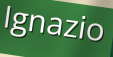
Ignazio